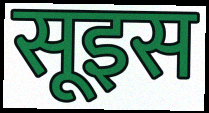
सूइस